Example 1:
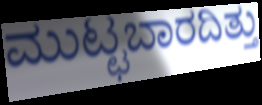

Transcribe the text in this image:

ಮುಟ್ಟಬಾರದಿತ್ತು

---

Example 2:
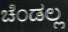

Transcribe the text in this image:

ಚೆಂಡಲ್ಲ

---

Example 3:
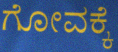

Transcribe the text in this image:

ಗೋವಕ್ಕೆ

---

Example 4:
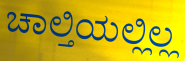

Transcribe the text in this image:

ಚಾಲ್ತಿಯಲ್ಲಿಲ್ಲ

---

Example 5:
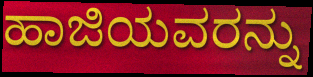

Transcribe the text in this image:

ಹಾಜಿಯವರನ್ನು